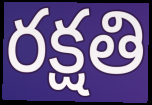
రక్షతి